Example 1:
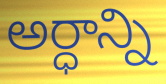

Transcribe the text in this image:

అర్ధాన్ని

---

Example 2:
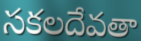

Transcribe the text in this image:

సకలదేవతా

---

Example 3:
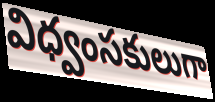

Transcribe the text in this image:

విధ్వంసకులుగా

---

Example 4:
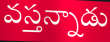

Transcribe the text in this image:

వస్తన్నాడు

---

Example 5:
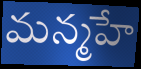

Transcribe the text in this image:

మన్మహే